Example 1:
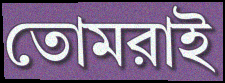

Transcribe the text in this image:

তোমরাই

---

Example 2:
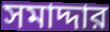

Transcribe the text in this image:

সমাদ্দার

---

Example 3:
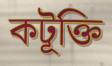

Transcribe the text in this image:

কটূক্তি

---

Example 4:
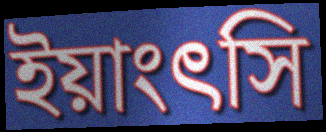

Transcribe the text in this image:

ইয়াংৎসি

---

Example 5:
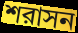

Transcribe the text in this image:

শরাসন